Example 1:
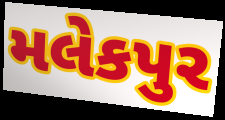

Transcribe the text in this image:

મલેકપુર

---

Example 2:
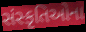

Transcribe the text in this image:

સંસ્કૃતિઓના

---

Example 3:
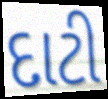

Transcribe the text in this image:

દાટી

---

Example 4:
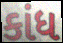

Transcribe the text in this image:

કાંધ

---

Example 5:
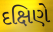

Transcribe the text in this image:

દક્ષિણે